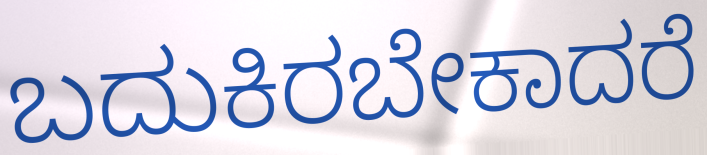
ಬದುಕಿರಬೇಕಾದರೆ